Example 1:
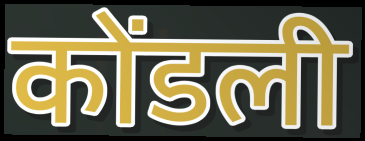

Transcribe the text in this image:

कोंडली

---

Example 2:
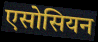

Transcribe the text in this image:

एसोसियन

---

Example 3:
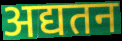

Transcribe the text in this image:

अद्यतन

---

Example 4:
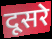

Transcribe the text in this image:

दूसरे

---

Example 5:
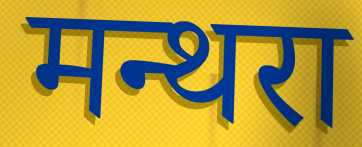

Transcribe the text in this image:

मन्थरा